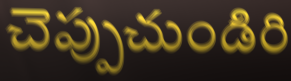
చెప్పుచుండిరి